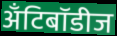
अँटिबॉडीज